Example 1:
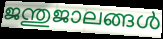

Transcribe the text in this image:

ജന്തുജാലങ്ങൾ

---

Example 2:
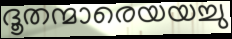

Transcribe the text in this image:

ദൂതന്മാരെയയച്ചു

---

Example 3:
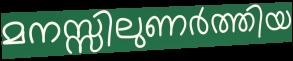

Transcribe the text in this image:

മനസ്സിലുണർത്തിയ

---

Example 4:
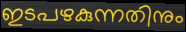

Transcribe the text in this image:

ഇടപഴകുന്നതിനും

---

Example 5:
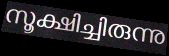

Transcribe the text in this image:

സൂക്ഷിച്ചിരുന്നു